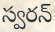
స్వరన్